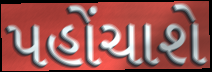
પહોંચાશે